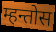
म्हन्तोस